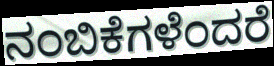
ನಂಬಿಕೆಗಳೆಂದರೆ